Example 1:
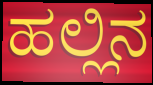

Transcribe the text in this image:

ಹಲ್ಲಿನ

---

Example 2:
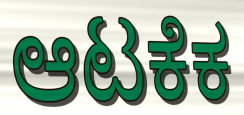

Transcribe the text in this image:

ಆಟಕೆಕ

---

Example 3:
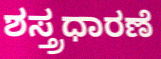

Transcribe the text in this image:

ಶಸ್ತ್ರಧಾರಣೆ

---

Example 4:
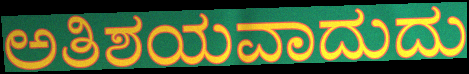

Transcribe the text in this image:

ಅತಿಶಯವಾದುದು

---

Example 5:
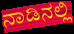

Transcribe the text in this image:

ನಾಡಿನಲ್ಲಿ